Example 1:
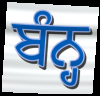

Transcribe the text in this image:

ਬੰਨ੍ਹ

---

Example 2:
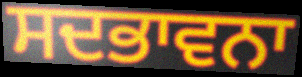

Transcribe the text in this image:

ਸਦਭਾਵਨਾ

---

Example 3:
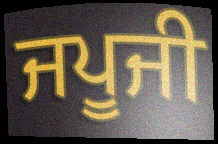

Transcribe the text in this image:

ਜਪੂਜੀ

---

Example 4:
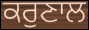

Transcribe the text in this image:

ਕਰੁਣਾਲ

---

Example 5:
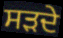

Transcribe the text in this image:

ਸੜਦੇ